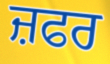
ਜ਼ਫਰ